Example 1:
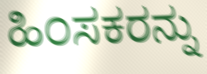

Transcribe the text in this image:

ಹಿಂಸಕರನ್ನು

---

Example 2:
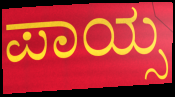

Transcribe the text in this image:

ಪಾಯ್ಸ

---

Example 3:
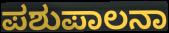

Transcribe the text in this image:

ಪಶುಪಾಲನಾ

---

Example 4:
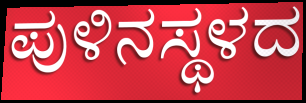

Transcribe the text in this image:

ಪುಳಿನಸ್ಥಳದ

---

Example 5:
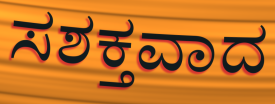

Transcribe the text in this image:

ಸಶಕ್ತವಾದ